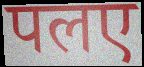
पलए